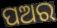
ପଅର